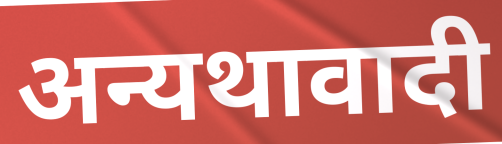
अन्यथावादी